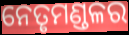
ନେତୃମଣ୍ଡଳର